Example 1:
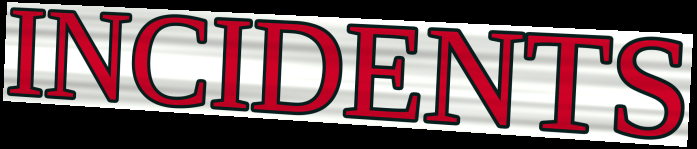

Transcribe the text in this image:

INCIDENTS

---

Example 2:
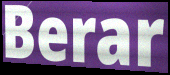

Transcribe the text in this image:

Berar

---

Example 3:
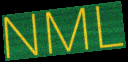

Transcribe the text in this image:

NML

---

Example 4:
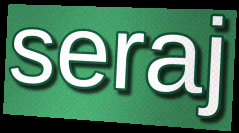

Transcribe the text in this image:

seraj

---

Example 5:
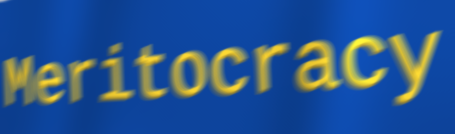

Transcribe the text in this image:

Meritocracy